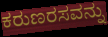
ಕರುಣರಸವನ್ನು